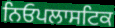
ਨਿਓਪਲਾਸਟਿਕ